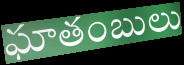
ఘాతంబులు